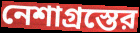
নেশাগ্রস্তের